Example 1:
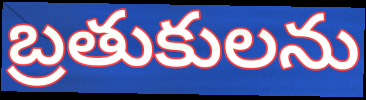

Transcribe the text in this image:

బ్రతుకులను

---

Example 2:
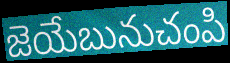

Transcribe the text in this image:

జెయేబునుచంపి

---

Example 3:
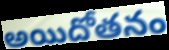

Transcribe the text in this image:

అయిదోతనం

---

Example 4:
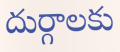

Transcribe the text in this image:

దుర్గాలకు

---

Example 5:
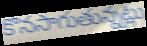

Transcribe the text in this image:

కొనసాగుతున్నట్లు